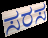
ಸರಸ